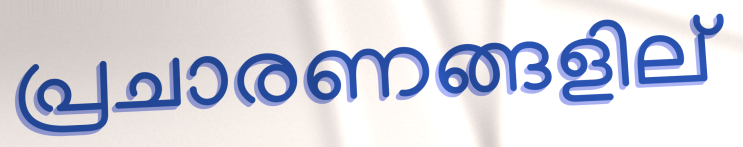
പ്രചാരണങ്ങളില്